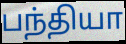
பந்தியா